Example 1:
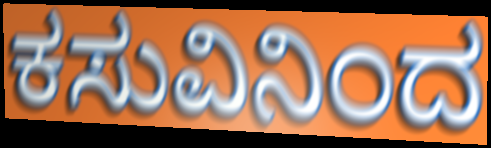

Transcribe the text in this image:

ಕಸುವಿನಿಂದ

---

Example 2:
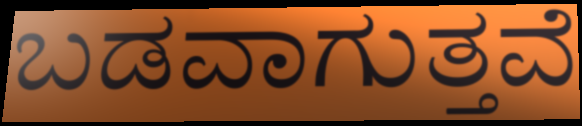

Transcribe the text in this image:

ಬಡವಾಗುತ್ತವೆ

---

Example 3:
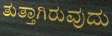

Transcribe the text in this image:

ತುತ್ತಾಗಿರುವುದು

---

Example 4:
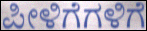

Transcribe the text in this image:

ಪೀಳಿಗೆಗಳಿಗೆ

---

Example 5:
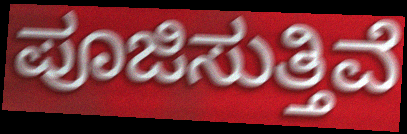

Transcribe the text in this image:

ಪೂಜಿಸುತ್ತಿವೆ